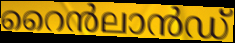
റൈൻലാൻഡ്